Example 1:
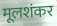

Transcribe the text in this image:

मूलशंकर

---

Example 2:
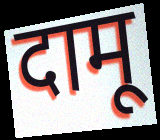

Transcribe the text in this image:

दामू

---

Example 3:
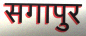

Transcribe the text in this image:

सगापुर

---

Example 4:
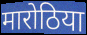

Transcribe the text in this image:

मारोठिया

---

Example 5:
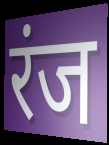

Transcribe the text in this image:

रंज